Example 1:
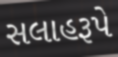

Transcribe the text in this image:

સલાહરૂપે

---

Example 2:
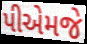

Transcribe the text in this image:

પીએમજે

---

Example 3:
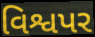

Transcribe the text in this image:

વિશ્વપર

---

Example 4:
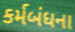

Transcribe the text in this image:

કર્મબંધના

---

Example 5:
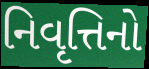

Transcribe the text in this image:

નિવૃત્તિનો